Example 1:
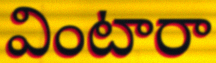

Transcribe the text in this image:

వింటారా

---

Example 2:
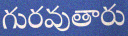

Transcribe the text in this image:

గురవుతారు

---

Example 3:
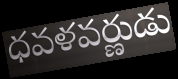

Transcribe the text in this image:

ధవళవర్ణుడు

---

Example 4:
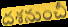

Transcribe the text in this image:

దశనుంచీ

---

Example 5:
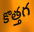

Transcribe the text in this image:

కొత్తగ